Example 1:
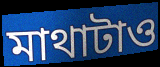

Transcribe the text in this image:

মাথাটাও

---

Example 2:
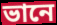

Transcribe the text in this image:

ভানে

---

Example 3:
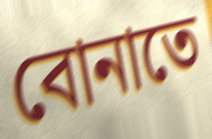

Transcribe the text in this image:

বোনাতে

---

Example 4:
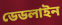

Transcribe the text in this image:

ডেডলাইন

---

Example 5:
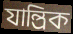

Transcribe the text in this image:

যান্ত্রিক